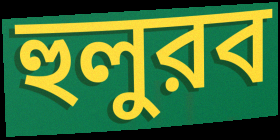
হুলুরব